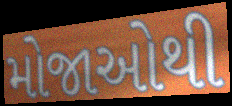
મોજાઓથી